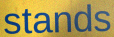
stands